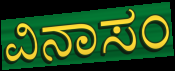
ವಿನಾಸಂ